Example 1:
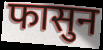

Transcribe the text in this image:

फासुन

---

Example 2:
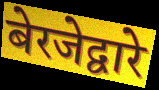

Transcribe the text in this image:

बेरजेद्वारे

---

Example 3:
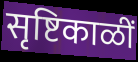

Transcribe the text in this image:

सृष्टिकाळीं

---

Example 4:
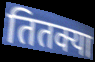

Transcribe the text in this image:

तितक्या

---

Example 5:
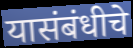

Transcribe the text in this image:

यासंबंधीचे